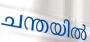
ചന്തയിൽ